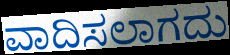
ವಾದಿಸಲಾಗದು